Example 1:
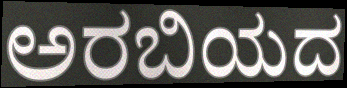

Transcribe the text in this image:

ಅರಬಿಯದ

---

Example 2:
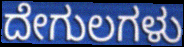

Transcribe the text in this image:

ದೇಗುಲಗಳು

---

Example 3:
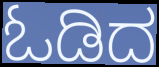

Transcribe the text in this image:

ಓಡಿದ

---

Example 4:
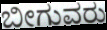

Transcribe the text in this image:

ಬೀಗುವರು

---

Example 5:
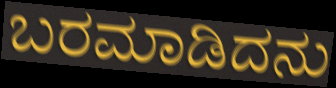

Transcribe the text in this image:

ಬರಮಾಡಿದನು